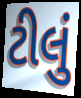
ટીલું